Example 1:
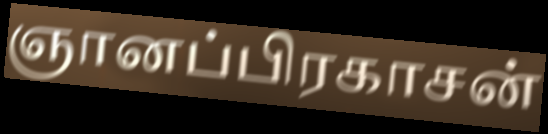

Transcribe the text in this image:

ஞானப்பிரகாசன்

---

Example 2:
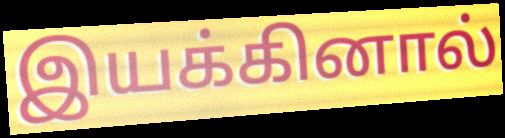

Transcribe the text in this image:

இயக்கினால்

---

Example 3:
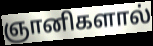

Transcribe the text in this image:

ஞானிகளால்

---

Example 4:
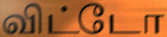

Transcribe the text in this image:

விட்டோ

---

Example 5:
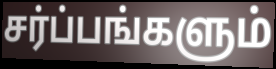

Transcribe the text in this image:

சர்ப்பங்களும்